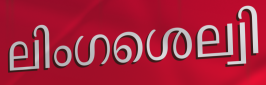
ലിംഗശെല്വി